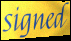
signed